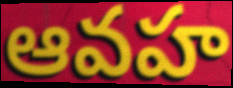
ఆవహ